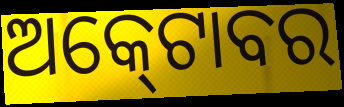
ଅକ୍‍ଟୋବର